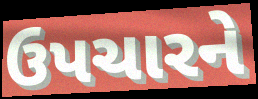
ઉપચારને